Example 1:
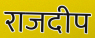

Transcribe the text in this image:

राजदीप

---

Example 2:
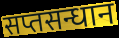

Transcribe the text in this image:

सप्तसन्धान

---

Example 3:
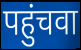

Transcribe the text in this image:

पहुंचवा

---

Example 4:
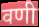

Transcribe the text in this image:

वणी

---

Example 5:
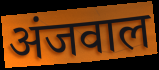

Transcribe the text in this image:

अंजवाल